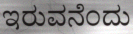
ಇರುವನೆಂದು